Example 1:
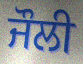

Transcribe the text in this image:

ਜੌਲੀ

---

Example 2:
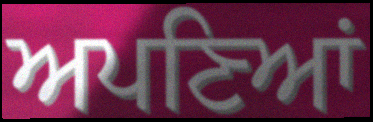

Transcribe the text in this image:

ਅਪਣਿਆਂ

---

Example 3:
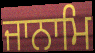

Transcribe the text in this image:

ਜਾਨਾਮਿ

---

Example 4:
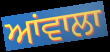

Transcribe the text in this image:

ਆਂਵਾਲਾ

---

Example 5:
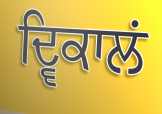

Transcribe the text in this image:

ਦ੍ਵਿਕਾਲਂ